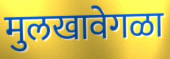
मुलखावेगळा